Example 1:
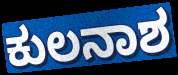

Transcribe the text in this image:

ಕುಲನಾಶ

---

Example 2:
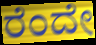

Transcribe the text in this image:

ರೆಂದೇ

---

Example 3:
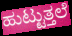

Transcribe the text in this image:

ಹುಟ್ಟುತ್ತಲೆ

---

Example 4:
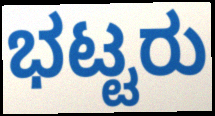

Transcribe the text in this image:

ಭಟ್ಟರು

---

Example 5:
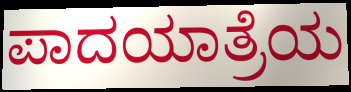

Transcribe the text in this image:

ಪಾದಯಾತ್ರೆಯ